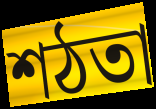
শঠতা